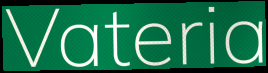
Vateria